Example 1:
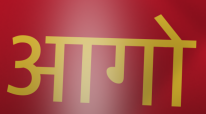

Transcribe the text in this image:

आगो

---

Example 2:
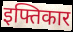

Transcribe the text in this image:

इफ्तिकार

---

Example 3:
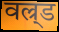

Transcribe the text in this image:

वल्र्ड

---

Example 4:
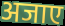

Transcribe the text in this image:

अजाए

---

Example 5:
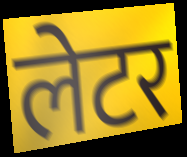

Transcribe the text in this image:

लेटर